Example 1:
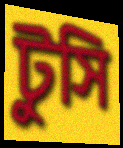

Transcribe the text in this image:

টুসি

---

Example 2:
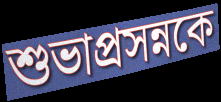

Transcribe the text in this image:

শুভাপ্রসন্নকে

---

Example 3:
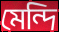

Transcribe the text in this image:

মেন্দি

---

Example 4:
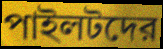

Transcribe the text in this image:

পাইলটদের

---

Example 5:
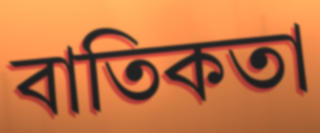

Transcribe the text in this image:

বাতিকতা